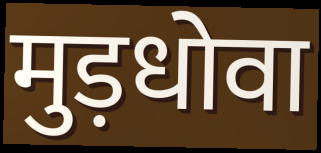
मुड़धोवा